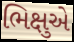
ભિક્ષુએ